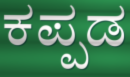
ಕಪ್ಪಡ